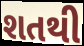
શતથી